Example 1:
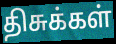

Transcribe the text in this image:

திசுக்கள்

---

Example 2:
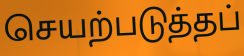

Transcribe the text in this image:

செயற்படுத்தப்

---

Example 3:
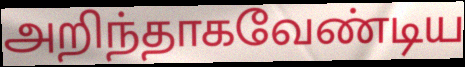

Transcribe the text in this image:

அறிந்தாகவேண்டிய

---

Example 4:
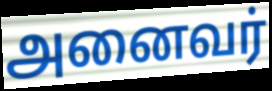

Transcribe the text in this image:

அனைவர்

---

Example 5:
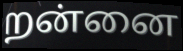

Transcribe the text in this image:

றன்னை